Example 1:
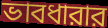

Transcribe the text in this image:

ভাবধারার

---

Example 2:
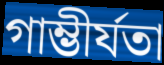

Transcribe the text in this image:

গাম্ভীর্যতা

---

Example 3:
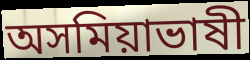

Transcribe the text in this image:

অসমিয়াভাষী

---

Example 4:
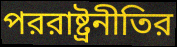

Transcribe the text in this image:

পররাষ্ট্রনীতির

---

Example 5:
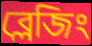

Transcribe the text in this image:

ব্লেজিং